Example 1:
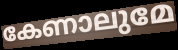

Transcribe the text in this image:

കേണാലുമേ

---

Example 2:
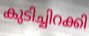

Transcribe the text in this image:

കുടിച്ചിറക്കി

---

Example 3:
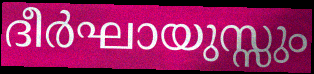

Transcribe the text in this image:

ദീർഘായുസ്സും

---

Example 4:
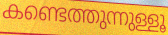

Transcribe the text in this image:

കണ്ടെത്തുന്നുള്ളൂ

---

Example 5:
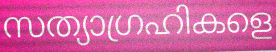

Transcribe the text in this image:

സത്യാഗ്രഹികളെ